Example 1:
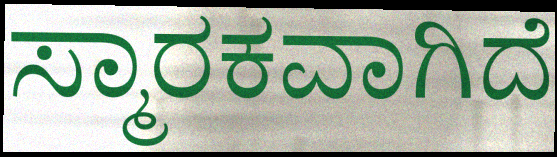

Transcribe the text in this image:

ಸ್ಮಾರಕವಾಗಿದೆ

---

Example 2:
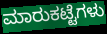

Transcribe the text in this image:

ಮಾರುಕಟ್ಟೆಗಳು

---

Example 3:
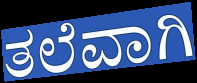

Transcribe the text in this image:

ತಲೆವಾಗಿ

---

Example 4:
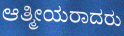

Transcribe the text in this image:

ಆತ್ಮೀಯರಾದರು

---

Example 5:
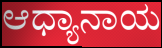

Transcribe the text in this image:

ಆಧ್ಯಾನಾಯ